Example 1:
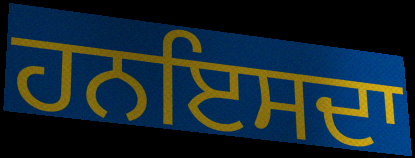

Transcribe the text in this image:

ਹਨਇਸਦਾ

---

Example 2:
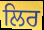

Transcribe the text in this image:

ਲਿਰ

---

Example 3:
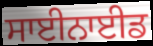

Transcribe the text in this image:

ਸਾਈਨਾਈਡ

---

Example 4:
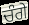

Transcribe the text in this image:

ਚੰਗੇ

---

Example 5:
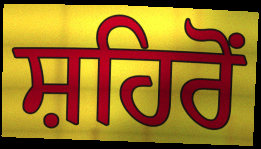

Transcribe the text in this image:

ਸ਼ਹਿਰੋਂ